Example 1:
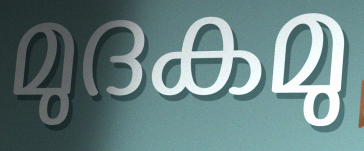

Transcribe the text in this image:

മുദകമു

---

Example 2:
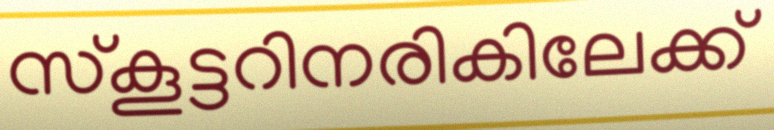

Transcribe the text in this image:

സ്കൂട്ടറിനരികിലേക്ക്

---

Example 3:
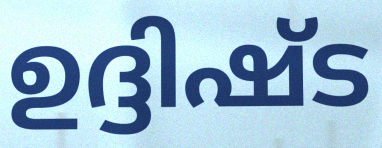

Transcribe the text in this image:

ഉദ്ദിഷ്ട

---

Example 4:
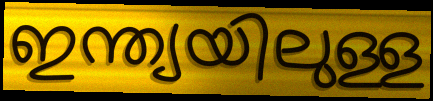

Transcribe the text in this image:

ഇന്ത്യയിലുള്ള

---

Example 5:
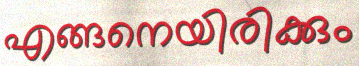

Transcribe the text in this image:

എങ്ങനെയിരിക്കും